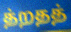
த்றதத்